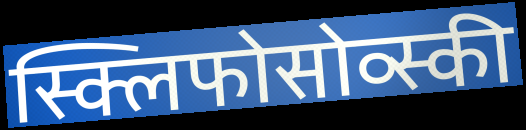
स्क्लिफोसोव्स्की